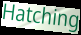
Hatching